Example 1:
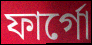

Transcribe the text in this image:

ফার্গো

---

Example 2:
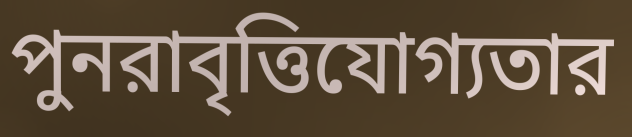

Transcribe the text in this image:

পুনরাবৃত্তিযোগ্যতার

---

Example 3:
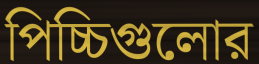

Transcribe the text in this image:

পিচ্চিগুলোর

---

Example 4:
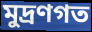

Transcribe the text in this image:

মুদ্রণগত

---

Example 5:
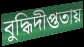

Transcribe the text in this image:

বুদ্ধিদীপ্ততায়